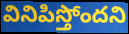
వినిపిస్తోందని